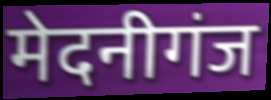
मेदनीगंज